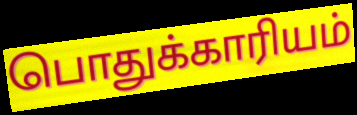
பொதுக்காரியம்